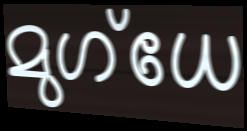
മുഗ്ധേ